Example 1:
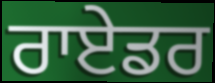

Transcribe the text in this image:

ਰਾਏਡਰ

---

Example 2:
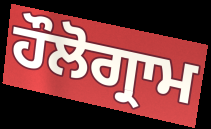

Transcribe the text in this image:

ਹੌਲੋਗ੍ਰਾਮ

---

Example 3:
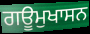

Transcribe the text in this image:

ਗਊਮੁਖਾਸਨ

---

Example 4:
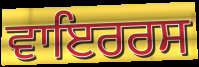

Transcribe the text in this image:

ਵਾਇਰਰਸ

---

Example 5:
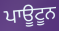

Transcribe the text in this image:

ਪਾਊਟੂਨ